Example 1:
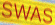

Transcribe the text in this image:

SWAS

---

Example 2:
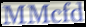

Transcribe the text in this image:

MMcfd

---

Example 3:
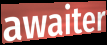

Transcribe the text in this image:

awaiter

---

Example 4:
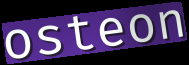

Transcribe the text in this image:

osteon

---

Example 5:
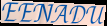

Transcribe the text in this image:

EENADU